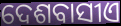
ଦେଶବାସୀଏ